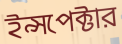
ইন্সপেক্টার